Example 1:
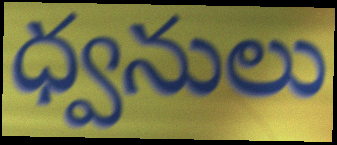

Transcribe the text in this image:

ధ్వనులు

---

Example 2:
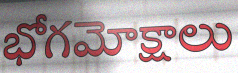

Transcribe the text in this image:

భోగమోక్షాలు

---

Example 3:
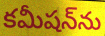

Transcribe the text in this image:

కమీషన్‌ను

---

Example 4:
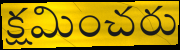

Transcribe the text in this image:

క్షమించరు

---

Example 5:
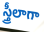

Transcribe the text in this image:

స్త్రీలాగా